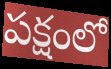
పక్షంలో